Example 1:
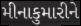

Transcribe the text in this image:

મીનાકુમારીને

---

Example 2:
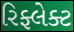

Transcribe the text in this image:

રિફ્લેક્ટ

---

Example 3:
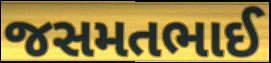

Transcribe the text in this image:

જસમતભાઈ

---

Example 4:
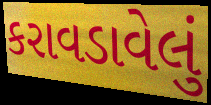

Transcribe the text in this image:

કરાવડાવેલું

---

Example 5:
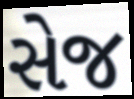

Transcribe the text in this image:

સેજ